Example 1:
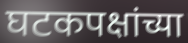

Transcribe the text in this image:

घटकपक्षांच्या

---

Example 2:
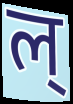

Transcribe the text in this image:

ल्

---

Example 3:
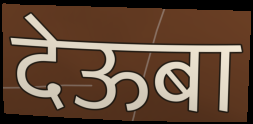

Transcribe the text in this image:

देऊबा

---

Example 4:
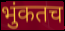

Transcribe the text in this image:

भुंकतच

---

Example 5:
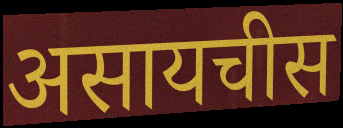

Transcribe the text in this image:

असायचीस